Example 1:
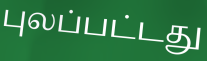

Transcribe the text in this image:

புலப்பட்டது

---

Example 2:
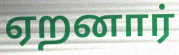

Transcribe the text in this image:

ஏறனார்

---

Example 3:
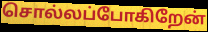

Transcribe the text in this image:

சொல்லப்போகிறேன்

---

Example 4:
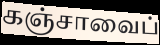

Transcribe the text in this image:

கஞ்சாவைப்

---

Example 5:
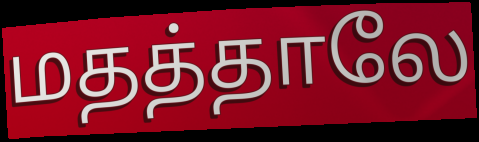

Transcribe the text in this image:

மதத்தாலே